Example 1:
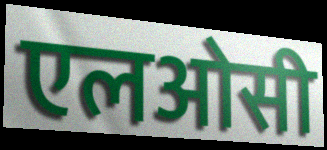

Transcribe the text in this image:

एलओसी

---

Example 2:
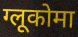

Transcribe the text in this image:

ग्लूकोमा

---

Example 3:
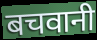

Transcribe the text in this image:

बचवानी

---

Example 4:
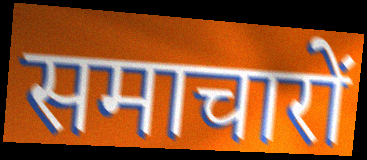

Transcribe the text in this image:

समाचारों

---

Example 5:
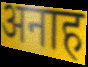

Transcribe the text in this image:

अनाह